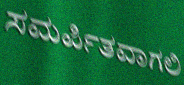
ಸಮರ್ಪಿತವಾಗಲಿ